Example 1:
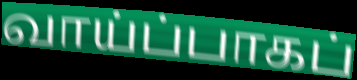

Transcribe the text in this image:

வாய்ப்பாகப்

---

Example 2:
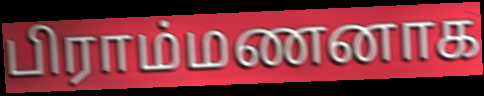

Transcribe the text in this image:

பிராம்மணனாக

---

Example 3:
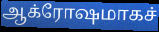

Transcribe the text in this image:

ஆக்ரோஷமாகச்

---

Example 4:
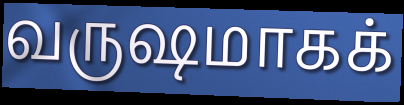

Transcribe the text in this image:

வருஷமாகக்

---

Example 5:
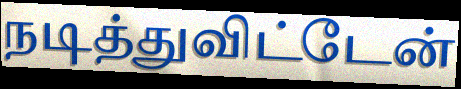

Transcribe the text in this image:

நடித்துவிட்டேன்